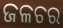
ଜଳଚର